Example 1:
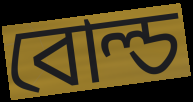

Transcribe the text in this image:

বোল্ড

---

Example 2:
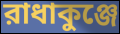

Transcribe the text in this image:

রাধাকুঞ্জে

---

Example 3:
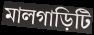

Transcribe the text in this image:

মালগাড়িটি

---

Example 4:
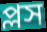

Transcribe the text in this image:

প্লস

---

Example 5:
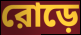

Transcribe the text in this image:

রোড়ে